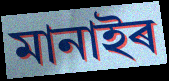
মানাইৰ